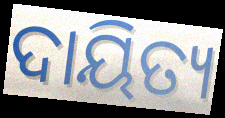
ଦାୟିତ୍ୟ